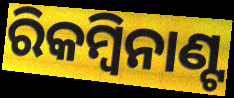
ରିକମ୍ବିନାଣ୍ଟ